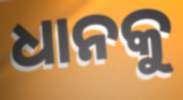
ଧାନକୁ